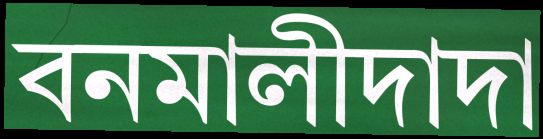
বনমালীদাদা